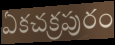
ఏకచక్రపురం